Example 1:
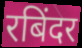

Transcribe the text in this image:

रबिंदर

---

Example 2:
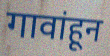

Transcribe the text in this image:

गावांहून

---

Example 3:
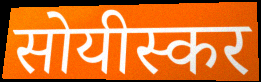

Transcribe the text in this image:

सोयीस्कर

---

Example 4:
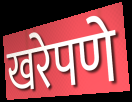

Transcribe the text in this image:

खरेपणे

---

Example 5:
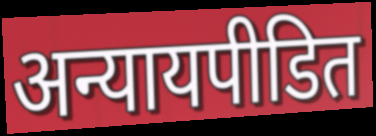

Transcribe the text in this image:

अन्यायपीडित